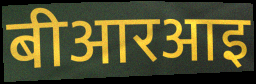
बीआरआइ